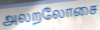
அலறலோசை